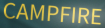
CAMPFIRE